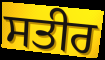
ਸਤੀਰ